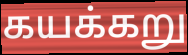
கயக்கறு